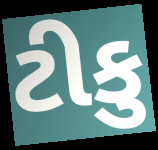
ટીકુ